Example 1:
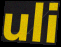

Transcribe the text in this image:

uli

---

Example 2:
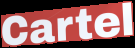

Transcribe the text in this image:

Cartel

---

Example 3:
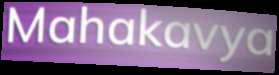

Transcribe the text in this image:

Mahakavya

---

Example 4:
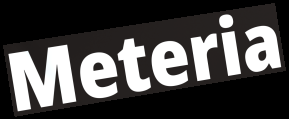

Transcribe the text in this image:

Meteria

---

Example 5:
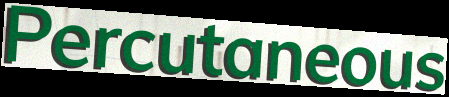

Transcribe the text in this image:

Percutaneous